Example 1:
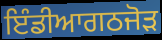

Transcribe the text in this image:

ਇੰਡੀਆਗਠਜੋੜ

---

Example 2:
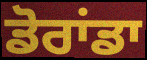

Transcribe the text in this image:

ਡੋਰਾਂਡਾ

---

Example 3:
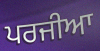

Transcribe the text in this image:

ਪਰਜੀਆ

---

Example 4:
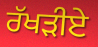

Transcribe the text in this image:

ਰੱਖੜੀਏ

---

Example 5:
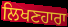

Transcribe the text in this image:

ਲਿਖਣਹਾਰਾ